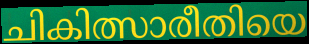
ചികിത്സാരീതിയെ